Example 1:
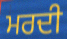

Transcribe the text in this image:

ਮਰਦੀ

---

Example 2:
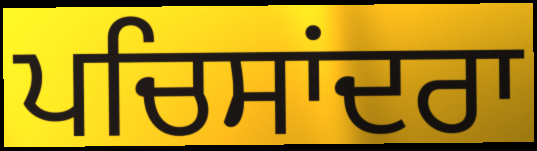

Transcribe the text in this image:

ਪਚਿਸਾਂਦਰਾ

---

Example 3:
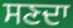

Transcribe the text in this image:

ਸਣਦਾ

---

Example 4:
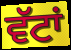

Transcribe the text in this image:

ਵੱਟਾਂ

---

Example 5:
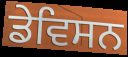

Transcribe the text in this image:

ਡੇਵਿਸਨ